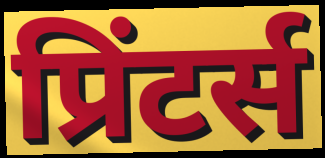
प्रिंटर्स